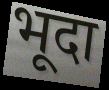
भूदा